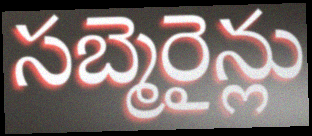
సబ్మెరైన్లు